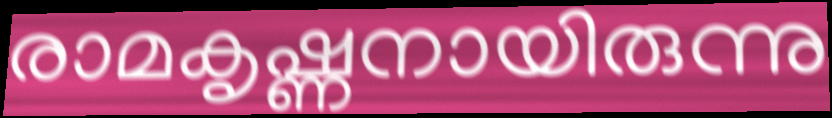
രാമകൃഷ്ണനായിരുന്നു